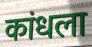
कांधला